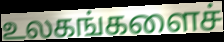
உலகங்களைச்